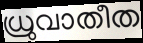
ധ്രുവാതീത